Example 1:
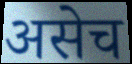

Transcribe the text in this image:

असेच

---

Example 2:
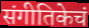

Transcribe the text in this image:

संगीतिकेचं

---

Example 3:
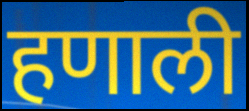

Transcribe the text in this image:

हणाली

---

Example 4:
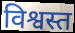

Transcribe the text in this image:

विश्वस्त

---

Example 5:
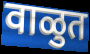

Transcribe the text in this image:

वाळुत